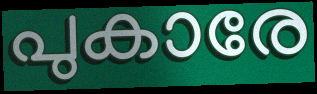
പുകാരേ